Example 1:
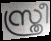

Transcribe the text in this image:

സ്ത്രീ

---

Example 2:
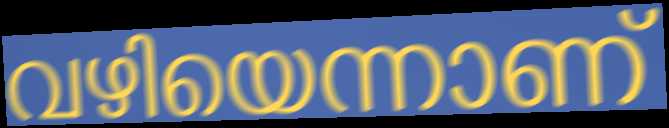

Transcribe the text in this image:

വഴിയെന്നാണ്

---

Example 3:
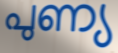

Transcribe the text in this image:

പുണ്യ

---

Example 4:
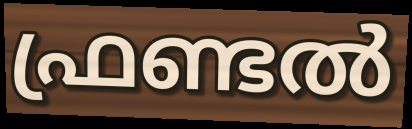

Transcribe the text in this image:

ഫ്രണ്ടൽ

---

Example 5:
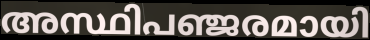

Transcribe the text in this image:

അസ്ഥിപഞ്ജരമായി